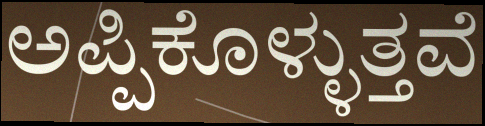
ಅಪ್ಪಿಕೊಳ್ಳುತ್ತವೆ